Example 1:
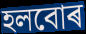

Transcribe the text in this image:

হলবোৰ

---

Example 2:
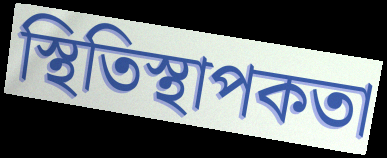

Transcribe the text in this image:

স্থিতিস্থাপকতা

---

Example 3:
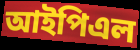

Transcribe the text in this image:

আইপিএল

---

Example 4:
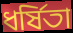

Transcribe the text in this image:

ধৰ্ষিতা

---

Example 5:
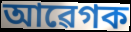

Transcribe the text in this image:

আৱেগক